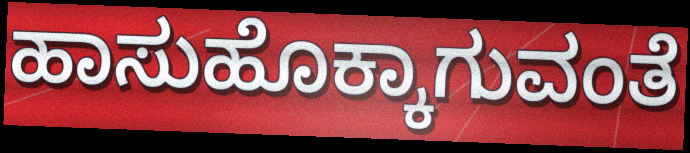
ಹಾಸುಹೊಕ್ಕಾಗುವಂತೆ